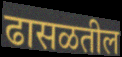
ढासळतील